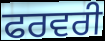
ਫਰਵਰੀ